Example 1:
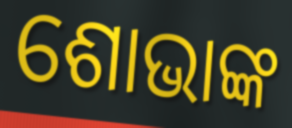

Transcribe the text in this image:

ଶୋଭାଙ୍କ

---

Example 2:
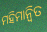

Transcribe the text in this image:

ମହିମାନ୍ଵିତ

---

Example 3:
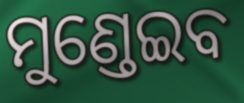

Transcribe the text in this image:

ମୁଣ୍ଡେଇବ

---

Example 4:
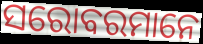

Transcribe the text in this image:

ସରୋବରମାନେ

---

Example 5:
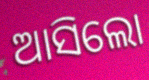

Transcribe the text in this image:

ଆସିଲୋ